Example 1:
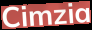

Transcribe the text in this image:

Cimzia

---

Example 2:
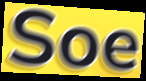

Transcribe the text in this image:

Soe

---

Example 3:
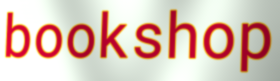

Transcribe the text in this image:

bookshop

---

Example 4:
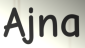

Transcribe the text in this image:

Ajna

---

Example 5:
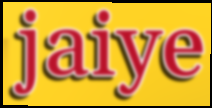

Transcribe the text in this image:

jaiye